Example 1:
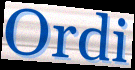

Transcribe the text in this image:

Ordi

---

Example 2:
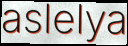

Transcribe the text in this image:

aslelya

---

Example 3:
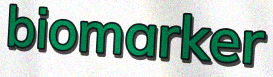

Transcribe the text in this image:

biomarker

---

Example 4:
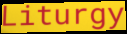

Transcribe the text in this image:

Liturgy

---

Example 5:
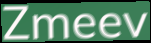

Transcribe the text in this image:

Zmeev